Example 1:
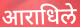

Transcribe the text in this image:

आराधिले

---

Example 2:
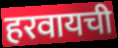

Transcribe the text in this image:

हरवायची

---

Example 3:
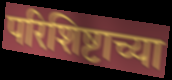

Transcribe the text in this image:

परिशिष्टाच्या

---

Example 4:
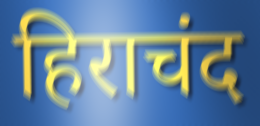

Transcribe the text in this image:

हिराचंद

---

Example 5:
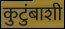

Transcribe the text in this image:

कुटुंबाशी